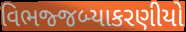
વિભજ્જબ્યાકરણીયો